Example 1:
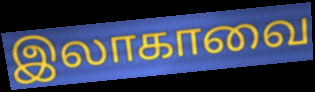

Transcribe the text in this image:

இலாகாவை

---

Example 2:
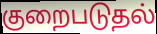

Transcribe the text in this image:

குறைபடுதல்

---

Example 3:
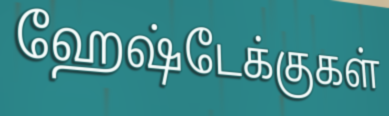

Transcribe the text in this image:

ஹேஷ்டேக்குகள்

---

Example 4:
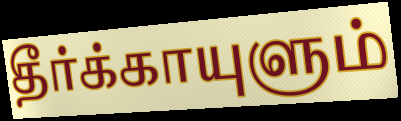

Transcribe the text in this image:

தீர்க்காயுளும்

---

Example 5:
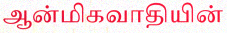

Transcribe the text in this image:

ஆன்மிகவாதியின்